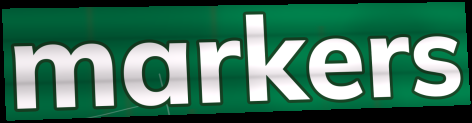
markers